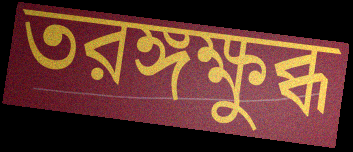
তরঙ্গক্ষুব্ধ